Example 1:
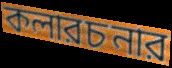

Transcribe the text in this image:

কলারচনার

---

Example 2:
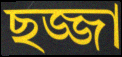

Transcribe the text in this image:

ছজ্জা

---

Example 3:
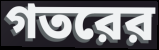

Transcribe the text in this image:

গতরের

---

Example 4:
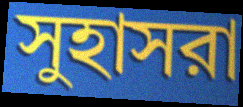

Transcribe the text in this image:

সুহাসরা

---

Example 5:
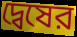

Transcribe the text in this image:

দ্বেষের